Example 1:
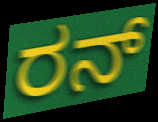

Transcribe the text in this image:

ರನ್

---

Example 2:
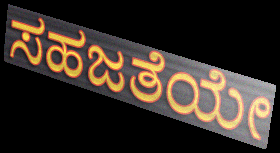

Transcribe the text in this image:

ಸಹಜತೆಯೇ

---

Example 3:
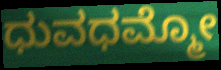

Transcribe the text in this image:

ಧುವಧಮ್ಮೋ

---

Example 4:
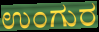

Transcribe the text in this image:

ಉಂಗುರ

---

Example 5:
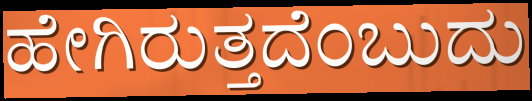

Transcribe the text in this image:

ಹೇಗಿರುತ್ತದೆಂಬುದು